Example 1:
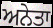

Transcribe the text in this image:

ਅਨੇਤਾ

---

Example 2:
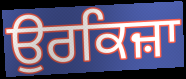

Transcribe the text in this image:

ਉਰਕਿਜ਼ਾ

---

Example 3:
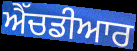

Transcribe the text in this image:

ਐੱਚਡੀਆਰ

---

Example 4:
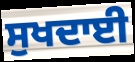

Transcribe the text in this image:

ਸੁਖਦਾਈ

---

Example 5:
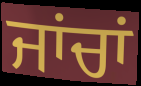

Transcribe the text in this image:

ਜਾਂਚਾਂ